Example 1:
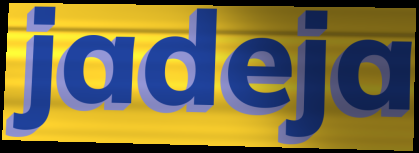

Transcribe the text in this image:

jadeja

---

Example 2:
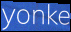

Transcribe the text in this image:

yonke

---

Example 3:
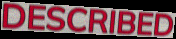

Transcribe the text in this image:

DESCRIBED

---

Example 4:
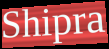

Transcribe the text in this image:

Shipra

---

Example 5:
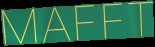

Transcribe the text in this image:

MAFFT